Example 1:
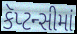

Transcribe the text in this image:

કૅપ્ટન્સીમાં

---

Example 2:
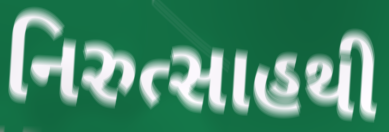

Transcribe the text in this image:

નિરુત્સાહથી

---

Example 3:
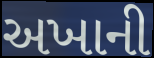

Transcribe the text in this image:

અખાની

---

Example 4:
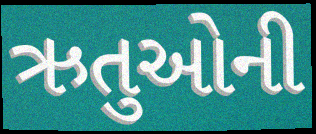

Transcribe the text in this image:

ઋતુઓની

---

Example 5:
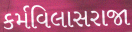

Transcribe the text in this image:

કર્મવિલાસરાજા